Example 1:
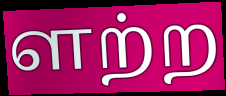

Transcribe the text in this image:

ளற்ற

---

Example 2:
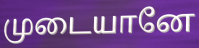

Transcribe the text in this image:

முடையானே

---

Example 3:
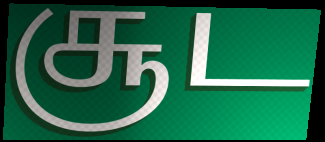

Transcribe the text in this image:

சூட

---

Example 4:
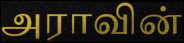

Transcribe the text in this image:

அராவின்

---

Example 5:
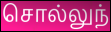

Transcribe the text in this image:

சொல்லுந்